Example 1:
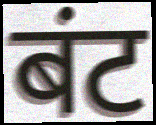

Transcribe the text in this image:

बंट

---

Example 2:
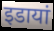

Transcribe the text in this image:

इडायां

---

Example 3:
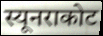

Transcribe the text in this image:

स्यूनराकोट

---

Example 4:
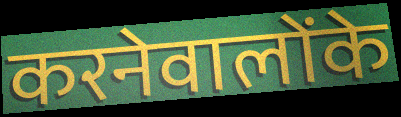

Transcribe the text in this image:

करनेवालोंके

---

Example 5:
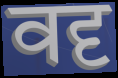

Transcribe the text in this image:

वदृ